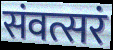
संवत्सरं